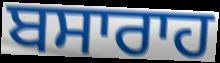
ਬਸਾਰਾਹ